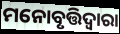
ମନୋବୃତ୍ତିଦ୍ଵାରା